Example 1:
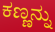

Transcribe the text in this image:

ಕಣ್ಣನ್ನು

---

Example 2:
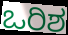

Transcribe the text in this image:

ಒರಿಶ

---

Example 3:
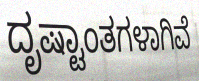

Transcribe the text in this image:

ದೃಷ್ಟಾಂತಗಳಾಗಿವೆ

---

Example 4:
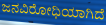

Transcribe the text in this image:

ಜನವಿರೋಧಿಯಾಗಿದೆ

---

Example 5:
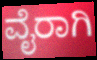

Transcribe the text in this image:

ವೈರಾಗಿ